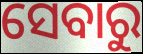
ସେବାରୁ